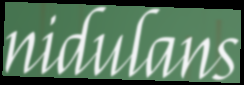
nidulans